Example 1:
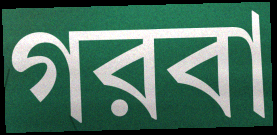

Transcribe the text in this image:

গরবা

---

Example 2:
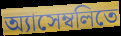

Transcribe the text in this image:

অ্যাসেম্বলিতে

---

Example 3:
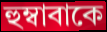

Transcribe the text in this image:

হুম্বাবাকে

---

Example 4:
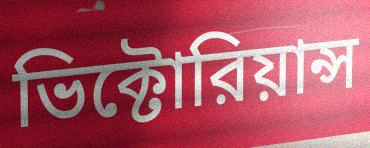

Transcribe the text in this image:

ভিক্টোরিয়ান্স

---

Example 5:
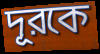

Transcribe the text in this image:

দূরকে